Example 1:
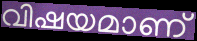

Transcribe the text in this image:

വിഷയമാണ്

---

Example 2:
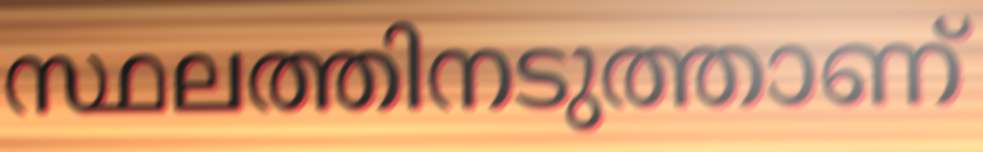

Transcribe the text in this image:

സ്ഥലത്തിനടുത്താണ്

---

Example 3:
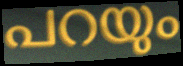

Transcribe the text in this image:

പറയും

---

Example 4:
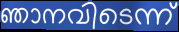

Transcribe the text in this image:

ഞാനവിടെന്ന്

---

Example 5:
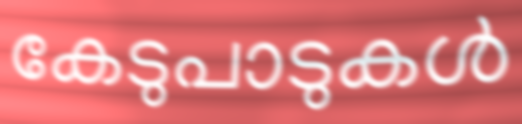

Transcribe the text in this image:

കേടുപാടുകൾ